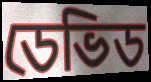
ডেভিড